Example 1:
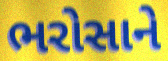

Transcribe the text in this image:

ભરોસાને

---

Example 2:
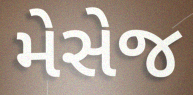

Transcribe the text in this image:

મેસેજ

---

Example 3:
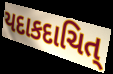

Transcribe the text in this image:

યદાકદાચિત્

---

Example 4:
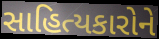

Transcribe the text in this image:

સાહિત્યકારોને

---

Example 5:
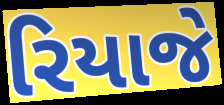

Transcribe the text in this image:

રિયાજે